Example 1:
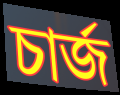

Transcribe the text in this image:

চাৰ্জ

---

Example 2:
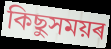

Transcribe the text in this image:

কিছুসময়ৰ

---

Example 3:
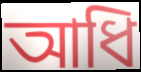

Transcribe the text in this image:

আধি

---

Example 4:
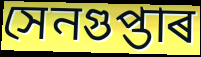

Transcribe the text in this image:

সেনগুপ্তাৰ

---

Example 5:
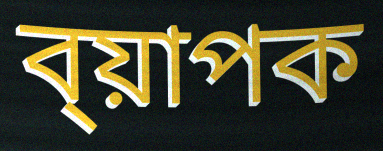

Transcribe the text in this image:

ব্য়াপক